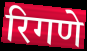
रिगणे